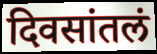
दिवसांतलं